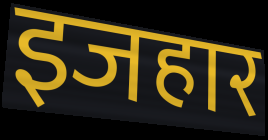
इजहार